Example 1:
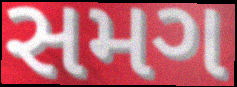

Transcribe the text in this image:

સમગ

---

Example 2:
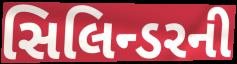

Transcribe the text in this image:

સિલિન્ડરની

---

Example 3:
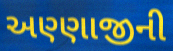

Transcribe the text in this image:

અણ્ણાજીની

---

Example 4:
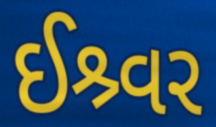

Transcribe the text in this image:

ઈશ્ર્વર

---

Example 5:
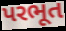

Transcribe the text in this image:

પરભૂત